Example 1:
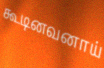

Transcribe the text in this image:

கூடினவனாய்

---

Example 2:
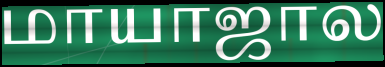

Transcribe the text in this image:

மாயாஜால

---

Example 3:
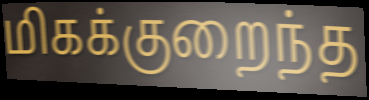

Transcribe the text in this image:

மிகக்குறைந்த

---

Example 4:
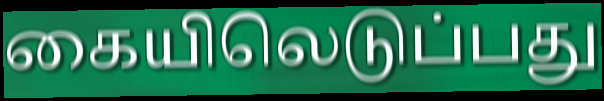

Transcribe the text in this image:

கையிலெடுப்பது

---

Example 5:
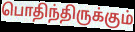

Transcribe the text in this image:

பொதிந்திருக்கும்